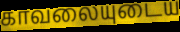
காவலையுடைய